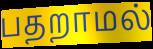
பதறாமல்